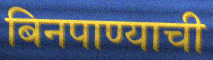
बिनपाण्याची